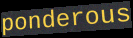
ponderous